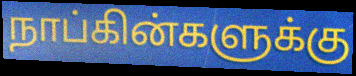
நாப்கின்களுக்கு